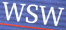
WSW